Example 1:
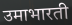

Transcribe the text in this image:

उमाभारती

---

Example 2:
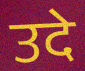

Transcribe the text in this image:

उदे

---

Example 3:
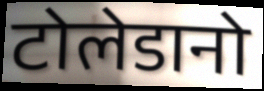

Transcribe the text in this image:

टोलेडानो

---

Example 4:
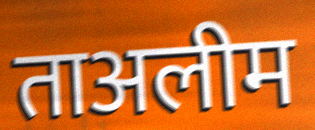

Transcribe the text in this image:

ताअलीम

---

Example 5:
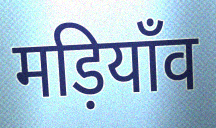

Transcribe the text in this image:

मड़ियाँव